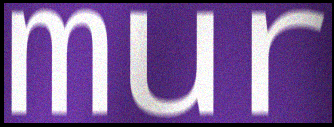
mur